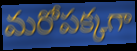
మరోపక్కగా